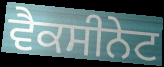
ਵੈਕਸੀਨੇਟ